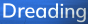
Dreading